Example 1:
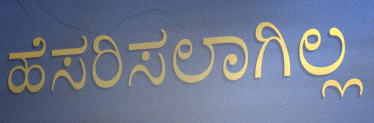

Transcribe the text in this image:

ಹೆಸರಿಸಲಾಗಿಲ್ಲ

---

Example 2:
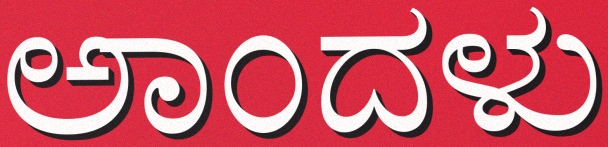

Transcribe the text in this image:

ಅಾಂದಳು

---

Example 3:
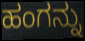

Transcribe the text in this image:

ಹಂಗನ್ನು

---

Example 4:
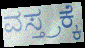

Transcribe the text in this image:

ವಸ್ತ್ರಕ್ಕೆ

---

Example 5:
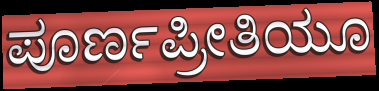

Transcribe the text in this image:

ಪೂರ್ಣಪ್ರೀತಿಯೂ